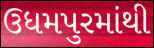
ઉધમપુરમાંથી